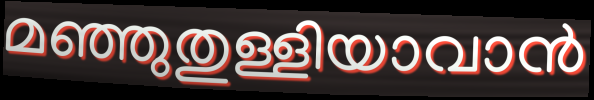
മഞ്ഞുതുള്ളിയാവാൻ